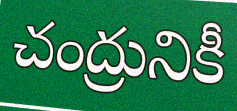
చంద్రునికీ